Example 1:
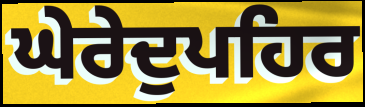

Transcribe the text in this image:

ਘੇਰੇਦੁਪਹਿਰ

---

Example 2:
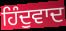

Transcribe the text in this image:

ਹਿੰਦੁਵਾਦ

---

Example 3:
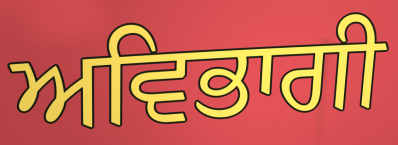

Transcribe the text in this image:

ਅਵਿਭਾਗੀ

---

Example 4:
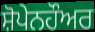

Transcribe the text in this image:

ਸ਼ੋਪੇਨਹੌਅਰ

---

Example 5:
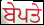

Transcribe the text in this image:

ਬੇਪਤੇ